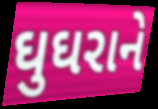
ઘુઘરાને